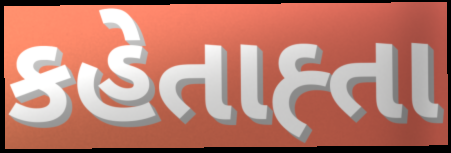
કહેતાહ્તા